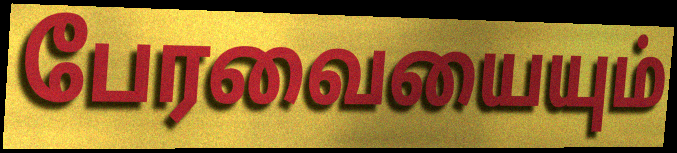
பேரவையையும்